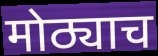
मोठ्याच